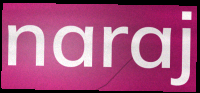
naraj